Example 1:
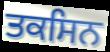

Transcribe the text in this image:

ਤਕਸਿਨ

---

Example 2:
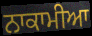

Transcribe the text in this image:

ਨਾਕਾਮੀਆ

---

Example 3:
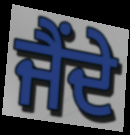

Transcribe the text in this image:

ਜੈਂਦੇ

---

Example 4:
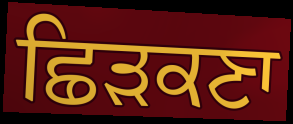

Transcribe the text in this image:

ਛਿੜਕਣਾ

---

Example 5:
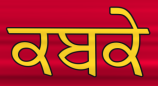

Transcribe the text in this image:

ਕਬਕੇ